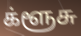
க்ளூசு